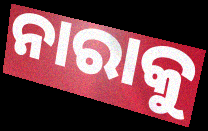
ନାରାକୁ